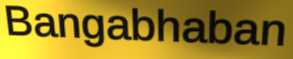
Bangabhaban